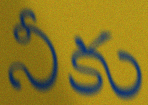
నీకు